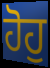
ਹੋਹੁ